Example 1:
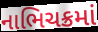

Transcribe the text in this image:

નાભિચક્રમાં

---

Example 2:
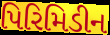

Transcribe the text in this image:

પિરિમિડીન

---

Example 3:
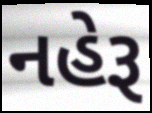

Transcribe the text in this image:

નહેરૂ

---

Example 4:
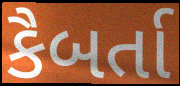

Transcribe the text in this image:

કૈબર્તા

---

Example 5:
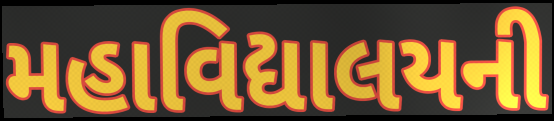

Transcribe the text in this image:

મહાવિદ્યાલયની